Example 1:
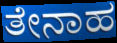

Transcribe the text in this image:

ತೇನಾಹ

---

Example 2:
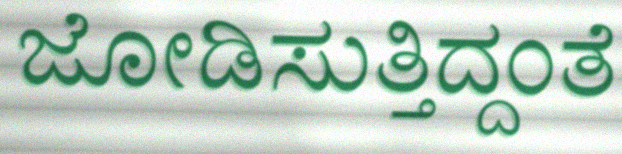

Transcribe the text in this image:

ಜೋಡಿಸುತ್ತಿದ್ದಂತೆ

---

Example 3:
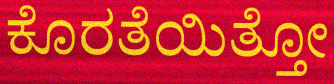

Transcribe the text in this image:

ಕೊರತೆಯಿತ್ತೋ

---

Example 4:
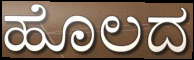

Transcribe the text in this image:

ಹೊಲದ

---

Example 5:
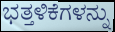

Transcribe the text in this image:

ಭತ್ತಳಿಕೆಗಳನ್ನು